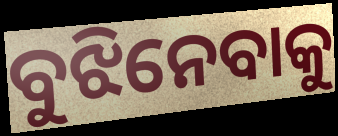
ବୁଝିନେବାକୁ